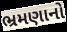
ભ્રમણાનો